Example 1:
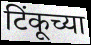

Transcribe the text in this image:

टिंकूच्या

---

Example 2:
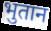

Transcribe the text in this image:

भुतान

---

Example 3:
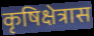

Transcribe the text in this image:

कृषिक्षेत्रास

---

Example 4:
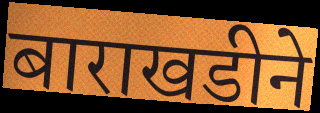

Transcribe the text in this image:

बाराखडीने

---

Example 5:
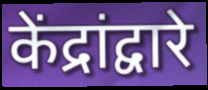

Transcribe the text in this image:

केंद्रांद्वारे